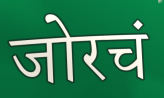
जोरचं